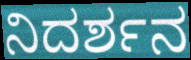
ನಿದರ್ಶನ